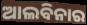
ଆଲବିନାର